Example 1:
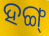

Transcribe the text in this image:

ହଙ୍ଗ୍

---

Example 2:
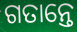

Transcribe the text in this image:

ଗତାନ୍ତେ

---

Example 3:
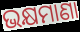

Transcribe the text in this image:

ଭକ୍ଷମାଣା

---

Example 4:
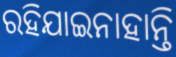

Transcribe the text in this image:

ରହିଯାଇନାହାନ୍ତି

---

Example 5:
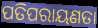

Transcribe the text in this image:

ପତିପରାୟଣତା